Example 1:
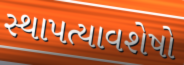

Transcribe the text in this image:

સ્થાપત્યાવશેષો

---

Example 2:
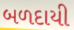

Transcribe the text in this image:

બળદાયી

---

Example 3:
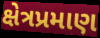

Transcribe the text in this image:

ક્ષેત્રપ્રમાણ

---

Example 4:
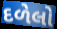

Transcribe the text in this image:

દળેલો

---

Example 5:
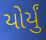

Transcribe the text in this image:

યોર્યું